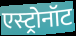
एस्‍ट्रोनॉट